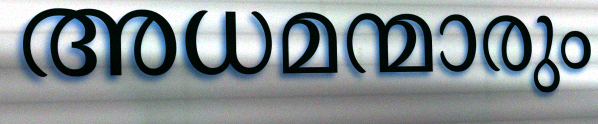
അധമന്മാരും